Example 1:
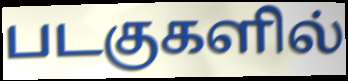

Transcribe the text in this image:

படகுகளில்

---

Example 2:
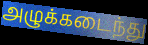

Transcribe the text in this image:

அழுக்கடைந்து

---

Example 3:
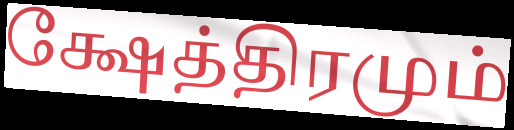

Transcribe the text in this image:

க்ஷேத்திரமும்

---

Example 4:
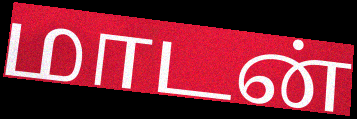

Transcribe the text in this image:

மாடன்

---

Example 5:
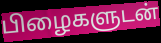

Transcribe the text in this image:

பிழைகளுடன்